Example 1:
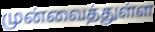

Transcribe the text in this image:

முன்வைத்துள்ள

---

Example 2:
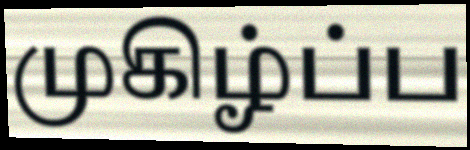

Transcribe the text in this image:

முகிழ்ப்ப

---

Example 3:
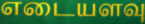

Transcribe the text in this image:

எடையளவு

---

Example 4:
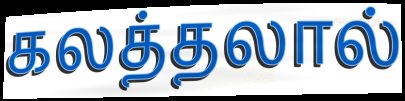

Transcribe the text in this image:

கலத்தலால்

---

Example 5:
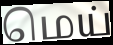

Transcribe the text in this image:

மெய்